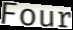
Four